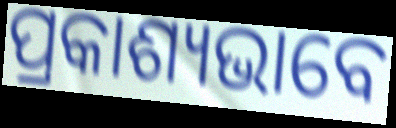
ପ୍ରକାଶ୍ୟଭାବେ